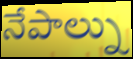
నేపాల్ను